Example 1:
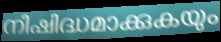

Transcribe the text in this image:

നിഷിദ്ധമാക്കുകയും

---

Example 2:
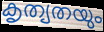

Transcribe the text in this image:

കൃത്യതയും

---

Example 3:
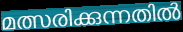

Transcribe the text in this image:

മത്സരിക്കുന്നതിൽ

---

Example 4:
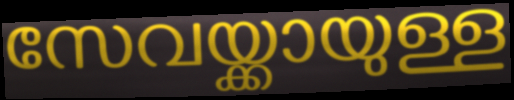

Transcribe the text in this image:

സേവയ്ക്കായുള്ള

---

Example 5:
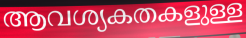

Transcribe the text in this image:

ആവശ്യകതകളുള്ള